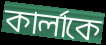
কার্লাকে